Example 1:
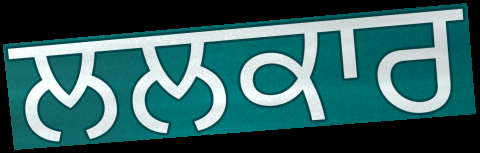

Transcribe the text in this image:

ਲਲਕਾਰ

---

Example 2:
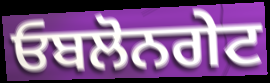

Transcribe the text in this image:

ਓਬਲੋਨਗੇਟ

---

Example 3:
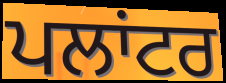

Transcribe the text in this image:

ਪਲਾਂਟਰ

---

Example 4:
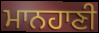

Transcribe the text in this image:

ਮਾਨਹਾਣੀ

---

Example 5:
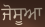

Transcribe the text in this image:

ਜੋਸੂਆ